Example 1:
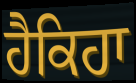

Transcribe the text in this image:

ਹੈਕਿਹਾ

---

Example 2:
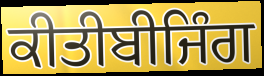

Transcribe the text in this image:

ਕੀਤੀਬੀਜਿੰਗ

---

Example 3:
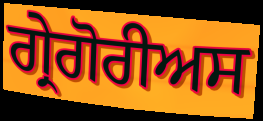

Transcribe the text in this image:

ਗ੍ਰੇਗੋਰੀਅਸ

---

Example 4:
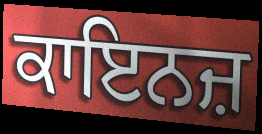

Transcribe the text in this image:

ਕਾਇਨਜ਼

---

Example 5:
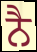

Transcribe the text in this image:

ਨੈ